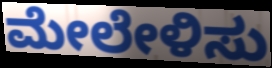
ಮೇಲೇಳಿಸು